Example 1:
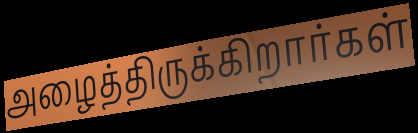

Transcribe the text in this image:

அழைத்திருக்கிறார்கள்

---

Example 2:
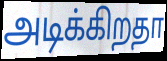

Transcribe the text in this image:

அடிக்கிறதா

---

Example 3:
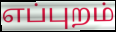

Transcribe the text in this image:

எப்புறம்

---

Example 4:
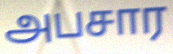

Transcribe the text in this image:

அபசார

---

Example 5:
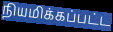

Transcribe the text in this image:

நியமிக்கப்பட்ட